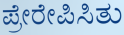
ಪ್ರೇರೇಪಿಸಿತು